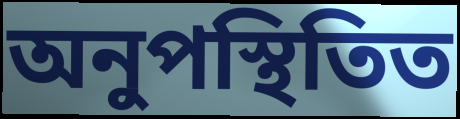
অনুপস্থিতিত